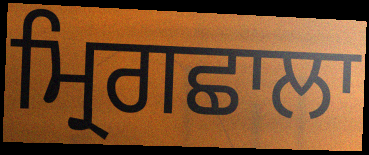
ਮ੍ਰਿਗਛਾਲਾ